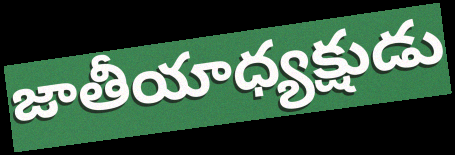
జాతీయాధ్యక్షుడు